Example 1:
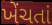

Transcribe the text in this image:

ખેંચતાં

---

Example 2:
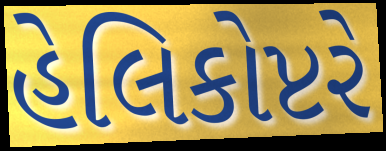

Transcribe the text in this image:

હેલિકોપ્ટરે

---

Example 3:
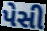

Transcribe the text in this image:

પેસી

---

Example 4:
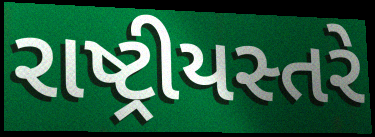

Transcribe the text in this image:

રાષ્ટ્રીયસ્તરે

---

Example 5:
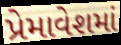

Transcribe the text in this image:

પ્રેમાવેશમાં